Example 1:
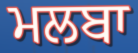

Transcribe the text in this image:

ਮਲਬਾ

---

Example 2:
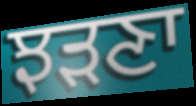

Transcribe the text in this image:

ਝੜਣਾ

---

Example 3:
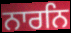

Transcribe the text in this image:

ਨਾਰਨਿ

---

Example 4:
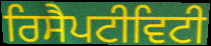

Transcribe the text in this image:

ਰਿਸੈਪਟੀਵਿਟੀ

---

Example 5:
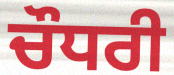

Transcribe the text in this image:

ਚੌਧਰੀ